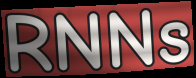
RNNs